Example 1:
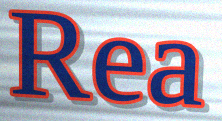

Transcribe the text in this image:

Rea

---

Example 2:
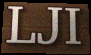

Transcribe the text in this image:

LJI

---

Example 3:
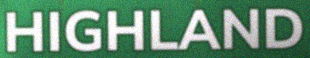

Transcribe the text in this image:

HIGHLAND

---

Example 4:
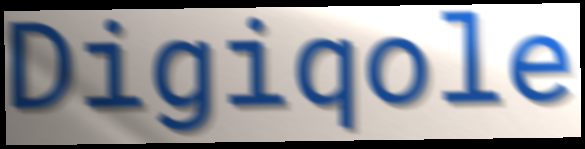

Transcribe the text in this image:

Digiqole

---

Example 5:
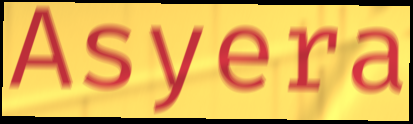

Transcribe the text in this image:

Asyera